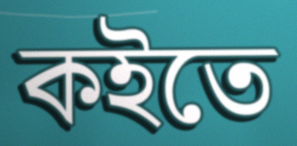
কইতে